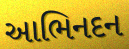
આભિનદન